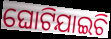
ଘୋଟିଯାଇଚି